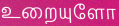
உறையுளோ